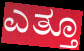
ಎತ್ತೂ